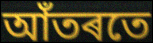
আঁতৰতে